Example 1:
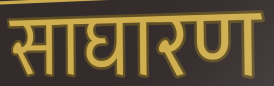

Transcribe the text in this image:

साघारण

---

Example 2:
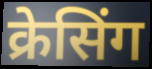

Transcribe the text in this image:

क्रेसिंग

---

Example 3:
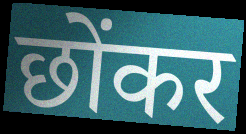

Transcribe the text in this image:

छोंकर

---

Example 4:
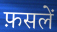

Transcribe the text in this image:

फ़सलें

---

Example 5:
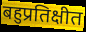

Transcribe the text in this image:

बहुप्रतिक्षीत